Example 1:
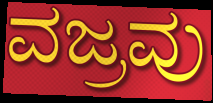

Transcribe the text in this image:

ವಜ್ರವು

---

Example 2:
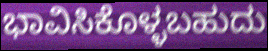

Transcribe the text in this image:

ಭಾವಿಸಿಕೊಳ್ಳಬಹುದು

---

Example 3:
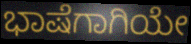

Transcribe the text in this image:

ಭಾಷೆಗಾಗಿಯೇ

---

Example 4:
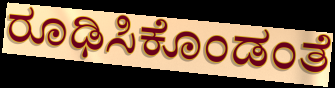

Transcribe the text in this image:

ರೂಢಿಸಿಕೊಂಡಂತೆ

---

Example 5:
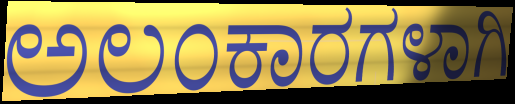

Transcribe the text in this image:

ಅಲಂಕಾರಗಳಾಗಿ